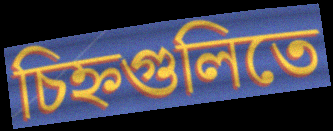
চিহ্নগুলিতে